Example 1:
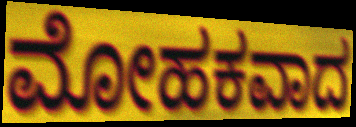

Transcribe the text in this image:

ಮೋಹಕವಾದ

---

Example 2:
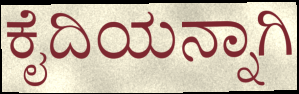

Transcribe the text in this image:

ಕೈದಿಯನ್ನಾಗಿ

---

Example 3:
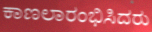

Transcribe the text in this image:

ಕಾಣಲಾರಂಭಿಸಿದರು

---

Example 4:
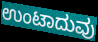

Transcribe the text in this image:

ಉಂಟಾದುವು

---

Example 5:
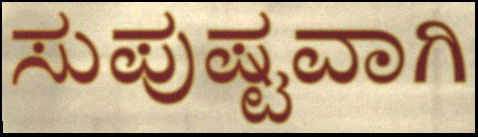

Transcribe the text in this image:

ಸುಪುಷ್ಟವಾಗಿ